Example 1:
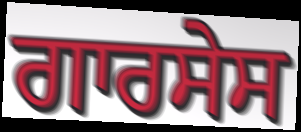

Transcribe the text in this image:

ਗਾਰਸੇਸ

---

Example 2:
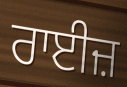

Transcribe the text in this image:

ਰਾਈਜ਼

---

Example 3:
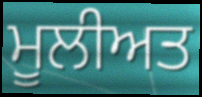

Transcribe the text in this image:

ਮੂਲੀਅਤ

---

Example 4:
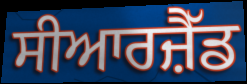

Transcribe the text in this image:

ਸੀਆਰਜ਼ੈੱਡ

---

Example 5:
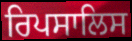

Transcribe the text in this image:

ਰਿਪਸਾਲਿਸ